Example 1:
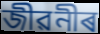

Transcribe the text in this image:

জীৱনীৰ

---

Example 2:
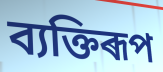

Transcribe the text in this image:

ব্যক্তিৰূপ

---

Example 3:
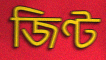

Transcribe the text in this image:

জিণ্ট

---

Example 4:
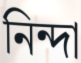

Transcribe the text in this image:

নিন্দা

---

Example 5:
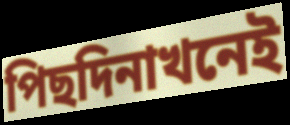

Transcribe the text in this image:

পিছদিনাখনেই